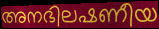
അനഭിലഷണീയ